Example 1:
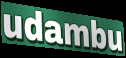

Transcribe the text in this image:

udambu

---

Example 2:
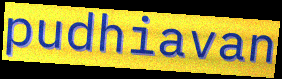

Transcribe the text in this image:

pudhiavan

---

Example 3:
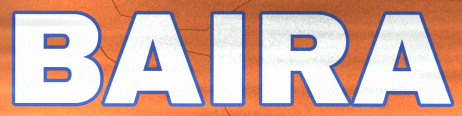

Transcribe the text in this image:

BAIRA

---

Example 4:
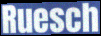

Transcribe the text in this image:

Ruesch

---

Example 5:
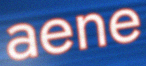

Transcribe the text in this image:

aene